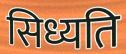
सिध्यति